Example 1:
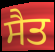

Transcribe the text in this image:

ਸੈਤ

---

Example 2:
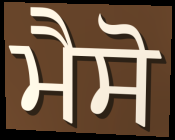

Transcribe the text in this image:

ਮੈਸੋ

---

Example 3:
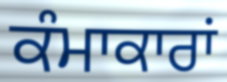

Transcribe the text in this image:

ਕੰਮਾਕਾਰਾਂ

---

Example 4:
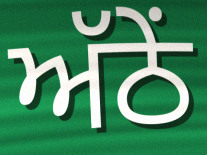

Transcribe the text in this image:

ਅੱਠੇਂ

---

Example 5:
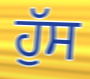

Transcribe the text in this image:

ਹੁੱਸ